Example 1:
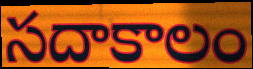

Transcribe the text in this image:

సదాకాలం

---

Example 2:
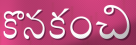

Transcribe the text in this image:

కొనకంచి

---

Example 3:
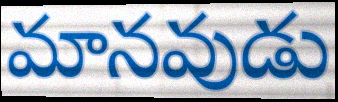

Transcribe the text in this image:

మానవుడు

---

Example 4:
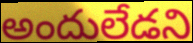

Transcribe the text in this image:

అందులేడని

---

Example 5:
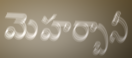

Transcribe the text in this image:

మెహర్బానీ